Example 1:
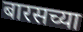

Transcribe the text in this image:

बारसच्या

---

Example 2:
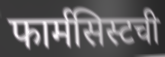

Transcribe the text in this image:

फार्मसिस्टची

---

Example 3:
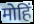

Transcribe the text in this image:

मोहिं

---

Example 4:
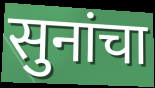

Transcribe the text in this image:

सुनांचा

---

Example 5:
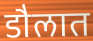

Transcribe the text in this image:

डौलात